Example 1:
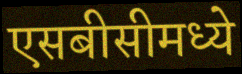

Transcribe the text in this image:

एसबीसीमध्ये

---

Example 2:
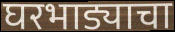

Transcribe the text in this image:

घरभाड्याचा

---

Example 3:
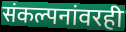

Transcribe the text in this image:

संकल्पनांवरही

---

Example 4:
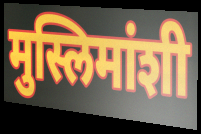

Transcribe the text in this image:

मुस्लिमांशी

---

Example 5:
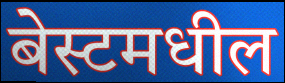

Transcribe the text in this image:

बेस्टमधील